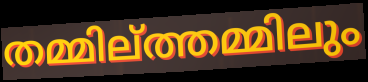
തമ്മില്ത്തമ്മിലും